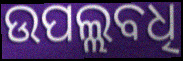
ଉପଲ୍ଲବଧି